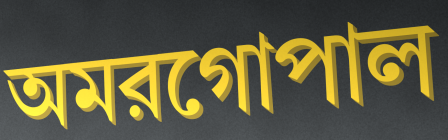
অমরগোপাল